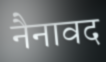
नैनावद